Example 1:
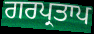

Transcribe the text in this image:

ਗਰਪ੍ਰਤਾਪ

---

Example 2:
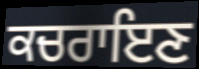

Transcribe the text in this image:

ਕਚਰਾਇਣ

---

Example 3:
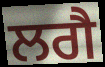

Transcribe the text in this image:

ਲਗੈ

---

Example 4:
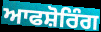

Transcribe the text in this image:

ਆਫਸ਼ੋਰਿੰਗ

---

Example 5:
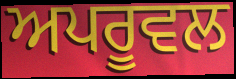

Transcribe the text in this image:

ਅਪਰੂਵਲ